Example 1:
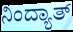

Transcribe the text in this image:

ನಿಂದ್ಯಾತ್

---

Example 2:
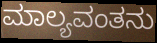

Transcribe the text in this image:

ಮಾಲ್ಯವಂತನು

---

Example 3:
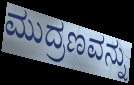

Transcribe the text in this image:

ಮುದ್ರಣವನ್ನು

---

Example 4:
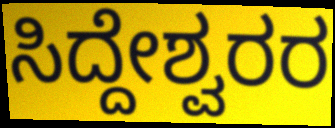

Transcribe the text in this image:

ಸಿದ್ದೇಶ್ವರರ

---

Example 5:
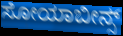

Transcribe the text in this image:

ಸೋಯಾಬೀನ್ಸ್